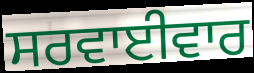
ਸਰਵਾਈਵਾਰ